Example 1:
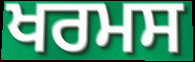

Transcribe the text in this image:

ਖਰਮਸ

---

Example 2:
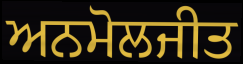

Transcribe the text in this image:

ਅਨਮੋਲਜੀਤ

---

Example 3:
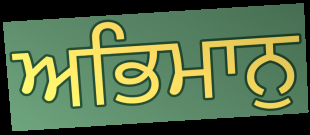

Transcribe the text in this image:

ਅਭਿਮਾਨੁ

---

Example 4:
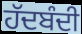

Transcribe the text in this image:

ਹੱਦਬੰਦੀ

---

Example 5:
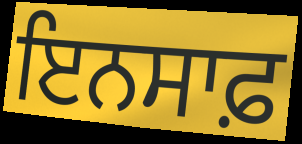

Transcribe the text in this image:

ਇਨਸਾਫ਼